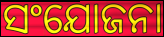
ସଂଯୋଜନା